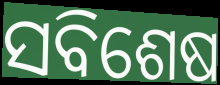
ସବିଶେଷ